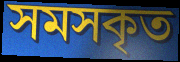
সমসকৃত